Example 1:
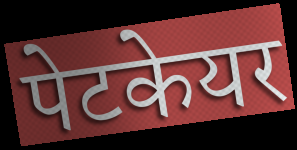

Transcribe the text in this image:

पेटकेयर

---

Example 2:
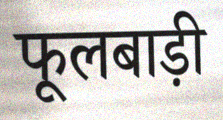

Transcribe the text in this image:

फूलबाड़ी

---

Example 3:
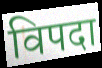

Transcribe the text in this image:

विपदा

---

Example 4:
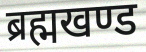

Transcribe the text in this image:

ब्रह्मखण्ड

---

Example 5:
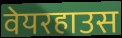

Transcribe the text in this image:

वेयरहाउस